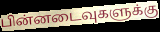
பின்னடைவுகளுக்கு